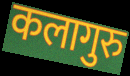
कलागुरु